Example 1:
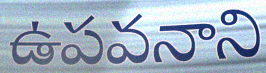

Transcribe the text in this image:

ఉపవనాని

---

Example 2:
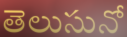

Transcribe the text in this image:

తెలుసునో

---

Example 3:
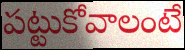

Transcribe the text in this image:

పట్టుకోవాలంటే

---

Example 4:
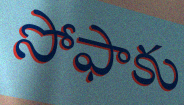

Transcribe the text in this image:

సోఫాకు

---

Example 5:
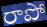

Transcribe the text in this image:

రాపో